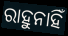
ରାହୁନାହିଁ